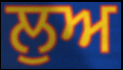
ਲੁਅ